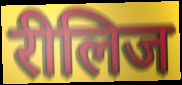
रीलिज